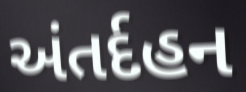
અંતર્દહન